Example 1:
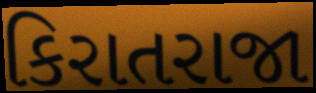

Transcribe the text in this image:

કિરાતરાજા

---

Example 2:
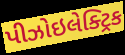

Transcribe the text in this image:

પીઝોઇલેક્ટ્રિક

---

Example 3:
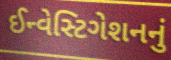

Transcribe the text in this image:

ઈન્વેસ્ટિગેશનનું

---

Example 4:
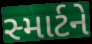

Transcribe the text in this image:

સ્માર્ટને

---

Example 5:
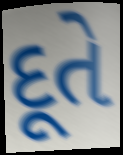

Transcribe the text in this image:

દૂતે